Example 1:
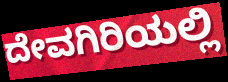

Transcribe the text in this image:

ದೇವಗಿರಿಯಲ್ಲಿ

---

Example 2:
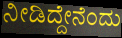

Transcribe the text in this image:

ನೀಡಿದ್ದೇನೆಂದು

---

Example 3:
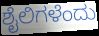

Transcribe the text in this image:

ಶೈಲಿಗಳೆಂದು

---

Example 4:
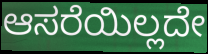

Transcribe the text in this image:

ಆಸರೆಯಿಲ್ಲದೇ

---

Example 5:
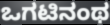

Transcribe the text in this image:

ಒಗಟಿನಂಥ